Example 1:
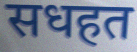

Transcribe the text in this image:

सधहत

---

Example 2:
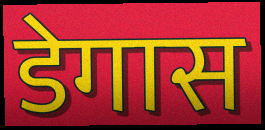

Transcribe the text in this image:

डेगास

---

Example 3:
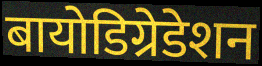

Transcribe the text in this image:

बायोडिग्रेडेशन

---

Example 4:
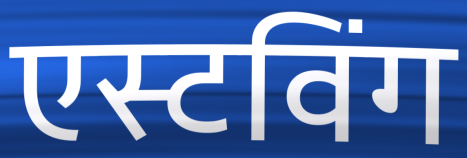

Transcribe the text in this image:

एस्टविंग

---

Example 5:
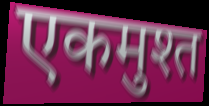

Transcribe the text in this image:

एकमुश्‍त